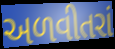
અળવીતરાં